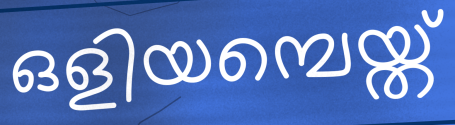
ഒളിയമ്പെയ്ത്